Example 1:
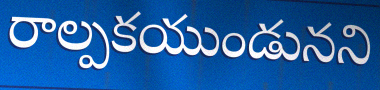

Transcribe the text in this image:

రాల్పకయుండునని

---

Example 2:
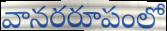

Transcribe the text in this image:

వానరరూపంలో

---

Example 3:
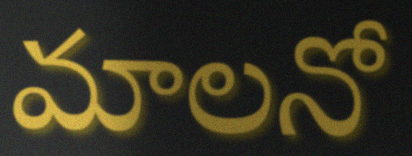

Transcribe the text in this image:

మాలనో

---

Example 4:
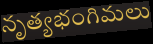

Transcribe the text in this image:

నృత్యభంగిమలు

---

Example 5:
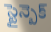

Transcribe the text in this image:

స్టైన్బెక్